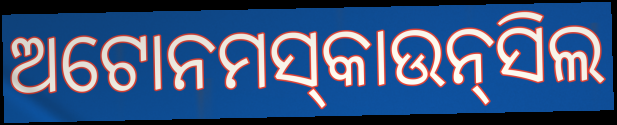
ଅଟୋନମସ୍‌କାଉନ୍‌ସିଲ